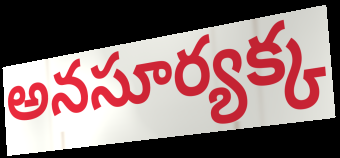
అనసూర్యక్క